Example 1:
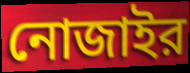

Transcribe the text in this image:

নোজাইর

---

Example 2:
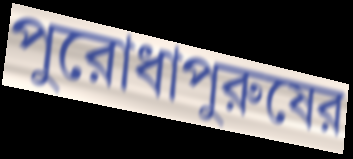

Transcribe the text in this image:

পুরোধাপুরুষের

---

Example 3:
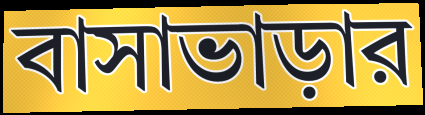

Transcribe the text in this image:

বাসাভাড়ার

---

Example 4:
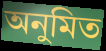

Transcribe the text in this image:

অনুমিত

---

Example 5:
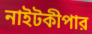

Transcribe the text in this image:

নাইটকীপার